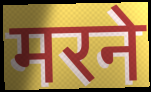
मरने